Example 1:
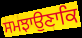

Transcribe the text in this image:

ਸਮਝਾਉਣਾਕਿ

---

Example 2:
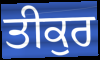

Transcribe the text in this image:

ਤੀਕੁਰ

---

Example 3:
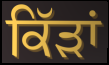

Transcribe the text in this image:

ਕਿੱੜਾਂ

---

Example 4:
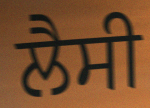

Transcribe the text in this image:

ਲੈਸੀ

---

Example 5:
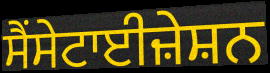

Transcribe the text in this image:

ਸੈਂਸੇਟਾਈਜ਼ੇਸ਼ਨ